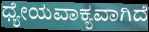
ಧ್ಯೇಯವಾಕ್ಯವಾಗಿದೆ